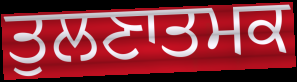
ਤੁਲਣਾਤਮਕ